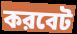
করবেট